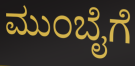
ಮುಂಬೈಗೆ